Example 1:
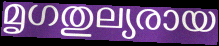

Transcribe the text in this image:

മൃഗതുല്യരായ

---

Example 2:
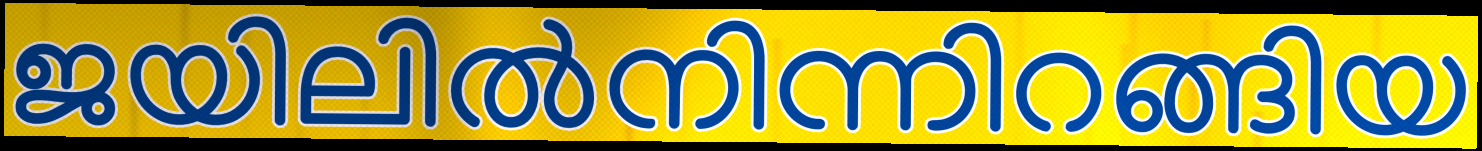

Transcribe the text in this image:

ജയിലിൽനിന്നിറങ്ങിയ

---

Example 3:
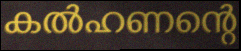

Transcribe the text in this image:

കൽഹണന്റെ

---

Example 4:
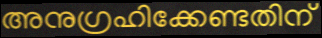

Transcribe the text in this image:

അനുഗ്രഹിക്കേണ്ടതിന്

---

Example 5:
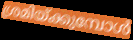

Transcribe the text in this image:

ശ്രമിയ്ക്കുമ്പോൾ